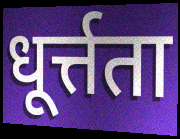
धूर्त्तता